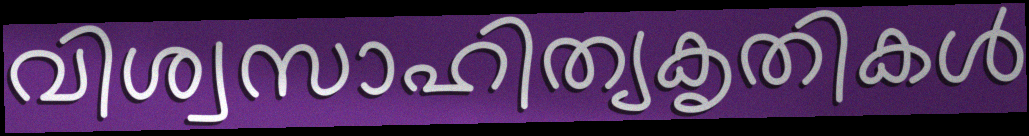
വിശ്വസാഹിത്യകൃതികൾ